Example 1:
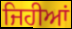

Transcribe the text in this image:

ਜਿਹੀਆਂ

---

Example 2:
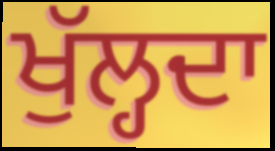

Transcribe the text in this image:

ਖੁੱਲ੍ਹਦਾ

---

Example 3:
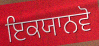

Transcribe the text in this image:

ਇਕਯਾਨਵੋ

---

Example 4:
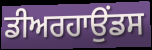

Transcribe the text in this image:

ਡੀਅਰਹਾਉਂਡਸ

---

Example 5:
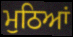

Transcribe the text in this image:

ਮੁਠਿਆਂ